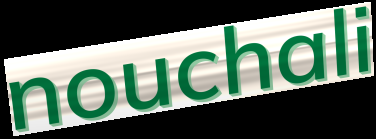
nouchali